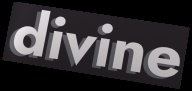
divine